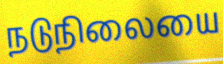
நடுநிலையை